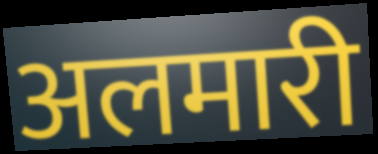
अलमारी